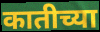
कातीच्या